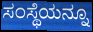
ಸಂಸ್ಥೆಯನ್ನೂ